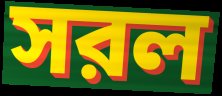
সরল